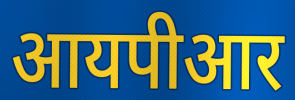
आयपीआर